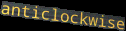
anticlockwise